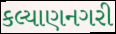
કલ્યાણનગરી